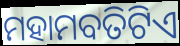
ମହାମବତିଟିଏ